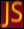
JS